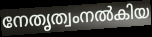
നേതൃത്വംനൽകിയ